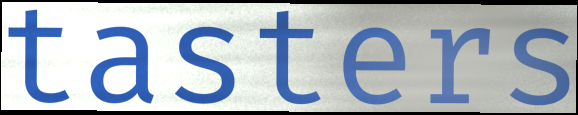
tasters